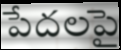
పేదలపై